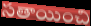
సతాయించి